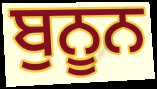
ਬੁਨੂਨ